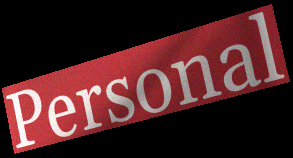
Personal